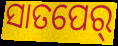
ସାତପେର୍